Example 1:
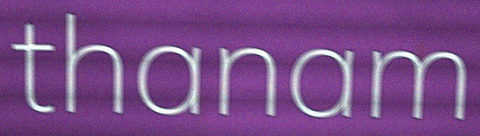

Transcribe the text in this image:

thanam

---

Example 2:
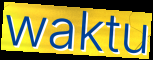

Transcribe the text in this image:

waktu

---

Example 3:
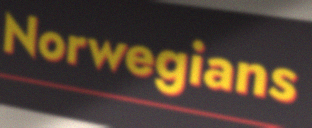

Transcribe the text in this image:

Norwegians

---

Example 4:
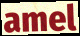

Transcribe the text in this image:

amel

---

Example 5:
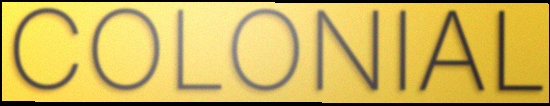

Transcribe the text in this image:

COLONIAL